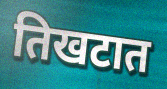
तिखटात